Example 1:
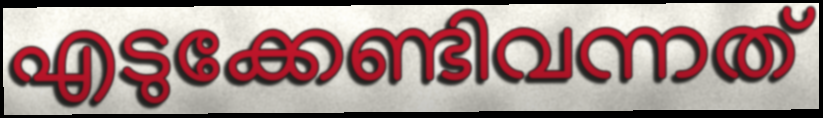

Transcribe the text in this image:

എടുക്കേണ്ടിവന്നത്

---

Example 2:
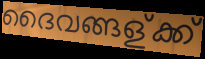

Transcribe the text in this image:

ദൈവങ്ങള്ക്ക്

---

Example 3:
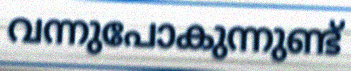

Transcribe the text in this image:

വന്നുപോകുന്നുണ്ട്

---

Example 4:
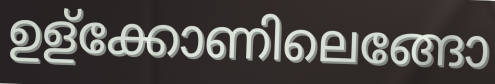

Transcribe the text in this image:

ഉള്ക്കോണിലെങ്ങോ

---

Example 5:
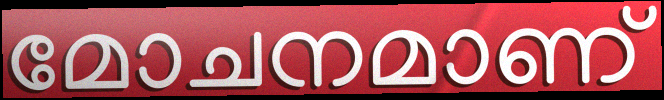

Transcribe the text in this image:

മോചനമാണ്